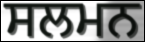
ਸਲਮਨ